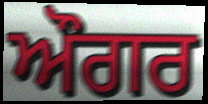
ਔਗਰ